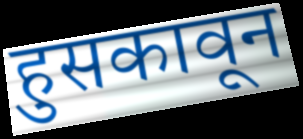
हुसकावून